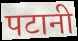
पटानी